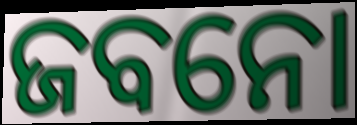
ଜବନୋ